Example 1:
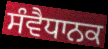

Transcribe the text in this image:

ਸੰਵੈਧਾਨਕ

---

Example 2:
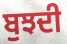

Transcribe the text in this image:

ਬੁਝਦੀ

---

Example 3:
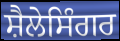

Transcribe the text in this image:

ਸ਼ੈਲੇਸਿੰਗਰ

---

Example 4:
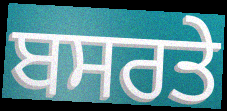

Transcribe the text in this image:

ਬਸਰਤੇ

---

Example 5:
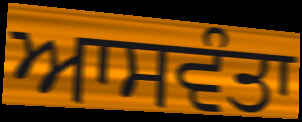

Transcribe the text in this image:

ਆਸਵੰਤਾ